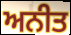
ਅਨੀਤ